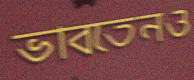
ভাবতেনও